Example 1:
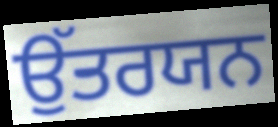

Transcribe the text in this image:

ਉੱਤਰਯਨ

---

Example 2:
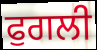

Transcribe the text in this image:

ਫੁਗਲੀ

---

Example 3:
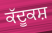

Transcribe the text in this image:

ਕੱਦੂਕਸ਼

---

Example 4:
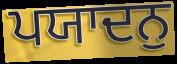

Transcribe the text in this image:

ਪਯਾਦਨੁ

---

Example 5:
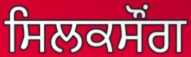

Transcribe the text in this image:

ਸਿਲਕਸੌਂਗ